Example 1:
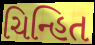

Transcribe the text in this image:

ચિન્હિત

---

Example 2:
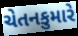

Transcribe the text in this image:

ચેતનકુમારે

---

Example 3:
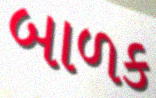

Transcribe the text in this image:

બાળક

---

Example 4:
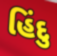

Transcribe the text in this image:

હિંદુ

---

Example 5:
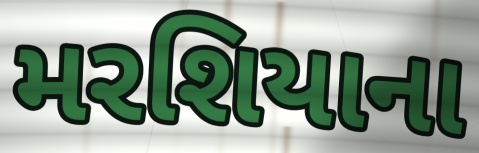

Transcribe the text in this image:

મરશિયાના